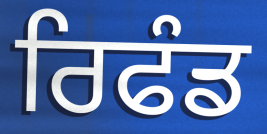
ਰਿਫੰਡ